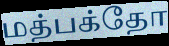
மத்பக்தோ